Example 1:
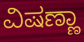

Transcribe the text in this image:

ವಿಷಣ್ಣಾ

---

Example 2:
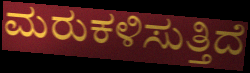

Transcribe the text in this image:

ಮರುಕಳಿಸುತ್ತಿದೆ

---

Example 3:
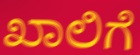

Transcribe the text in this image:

ಖಾಲಿಗೆ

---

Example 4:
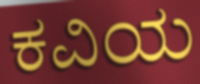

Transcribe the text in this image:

ಕವಿಯ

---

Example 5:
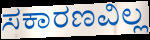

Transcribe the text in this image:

ಸಕಾರಣವಿಲ್ಲ